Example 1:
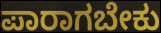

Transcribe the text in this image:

ಪಾರಾಗಬೇಕು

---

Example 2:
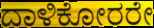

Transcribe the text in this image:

ದಾಳಿಕೋರರೇ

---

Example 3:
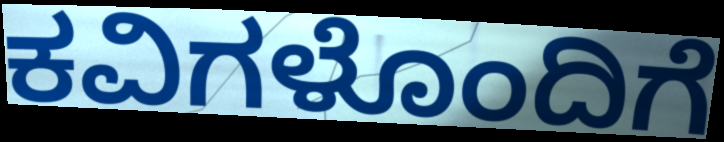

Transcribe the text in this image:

ಕವಿಗಳೊಂದಿಗೆ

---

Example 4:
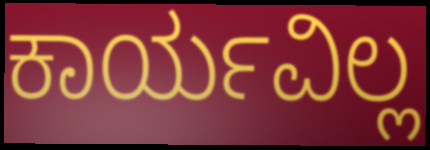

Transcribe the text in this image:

ಕಾರ್ಯವಿಲ್ಲ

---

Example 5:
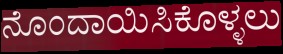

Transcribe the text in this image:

ನೊಂದಾಯಿಸಿಕೊಳ್ಳಲು